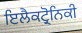
ਇਲੈਕਟ੍ਰੋਨਿਕੀ